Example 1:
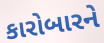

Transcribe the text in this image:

કારોબારને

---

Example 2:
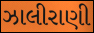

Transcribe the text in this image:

ઝાલીરાણી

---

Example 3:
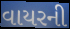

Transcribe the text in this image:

વાયરની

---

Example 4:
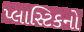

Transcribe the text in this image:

પ્લાસ્ટિકનો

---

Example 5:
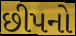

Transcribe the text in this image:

છીપનો